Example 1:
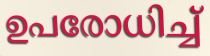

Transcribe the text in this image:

ഉപരോധിച്ച്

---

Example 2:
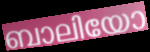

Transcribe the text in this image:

ബാലിയോ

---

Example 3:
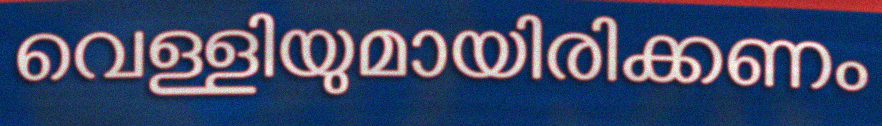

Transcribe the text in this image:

വെള്ളിയുമായിരിക്കണം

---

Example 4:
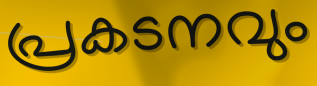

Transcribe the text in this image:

പ്രകടനവും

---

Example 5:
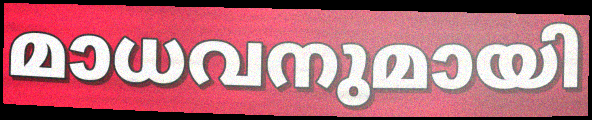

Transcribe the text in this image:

മാധവനുമായി